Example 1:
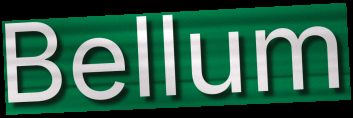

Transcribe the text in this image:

Bellum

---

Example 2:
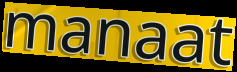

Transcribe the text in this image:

manaat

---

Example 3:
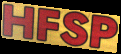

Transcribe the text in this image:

HFSP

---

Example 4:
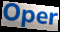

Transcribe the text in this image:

Oper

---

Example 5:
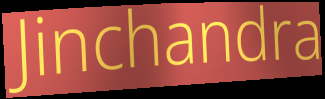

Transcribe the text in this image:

Jinchandra